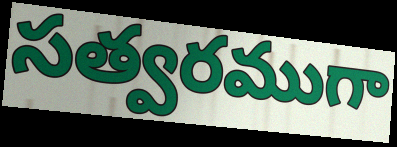
సత్వరముగా